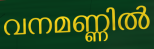
വനമണ്ണിൽ